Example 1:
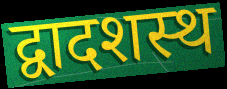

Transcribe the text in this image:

द्वादशस्थ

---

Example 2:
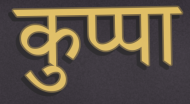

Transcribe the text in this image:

कुप्पा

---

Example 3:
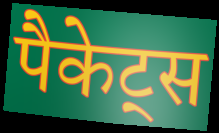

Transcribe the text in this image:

पैकेट्स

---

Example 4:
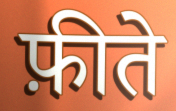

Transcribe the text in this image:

फ़ीते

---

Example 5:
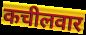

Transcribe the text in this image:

कचीलवार